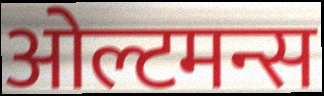
ओल्टमन्स